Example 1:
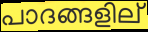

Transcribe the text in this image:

പാദങ്ങളില്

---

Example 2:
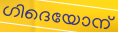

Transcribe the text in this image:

ഗിദെയോന്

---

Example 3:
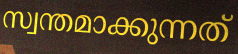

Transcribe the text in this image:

സ്വന്തമാക്കുന്നത്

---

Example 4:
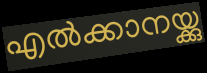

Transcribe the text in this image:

എൽക്കാനയ്ക്കു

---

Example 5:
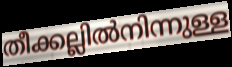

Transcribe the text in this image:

തീക്കല്ലിൽനിന്നുള്ള